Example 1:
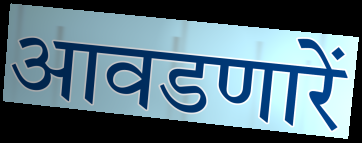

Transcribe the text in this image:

आवडणारें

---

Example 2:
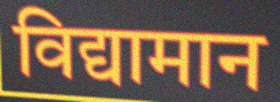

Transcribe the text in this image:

विद्यामान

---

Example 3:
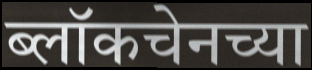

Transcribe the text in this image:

ब्लॉकचेनच्या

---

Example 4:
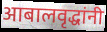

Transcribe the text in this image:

आबालवृद्धांनी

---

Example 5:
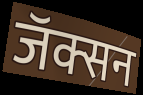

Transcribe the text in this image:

जॅक्सन